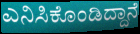
ಎನಿಸಿಕೊಂಡಿದ್ದಾನೆ